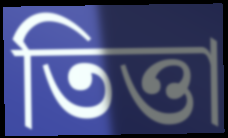
তিত্তা